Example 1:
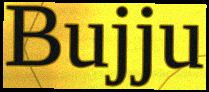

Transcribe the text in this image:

Bujju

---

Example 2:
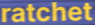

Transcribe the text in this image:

ratchet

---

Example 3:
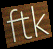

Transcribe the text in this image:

ftk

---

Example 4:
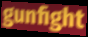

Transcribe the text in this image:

gunfight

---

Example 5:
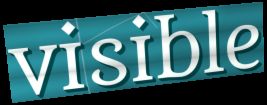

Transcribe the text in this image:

visible